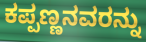
ಕಪ್ಪಣ್ಣನವರನ್ನು